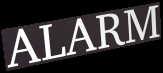
ALARM